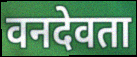
वनदेवता